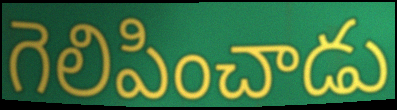
గెలిపించాడు